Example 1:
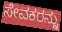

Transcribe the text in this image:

ಸೇವಕರನ್ನು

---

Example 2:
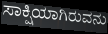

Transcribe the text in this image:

ಸಾಕ್ಷಿಯಾಗಿರುವನು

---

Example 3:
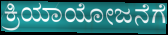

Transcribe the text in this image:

ಕ್ರಿಯಾಯೋಜನೆಗೆ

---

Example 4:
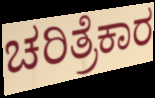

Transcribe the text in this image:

ಚರಿತ್ರೆಕಾರ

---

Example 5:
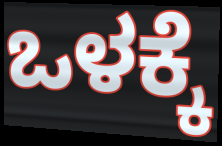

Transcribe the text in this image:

ಒಳಕ್ಕೆ